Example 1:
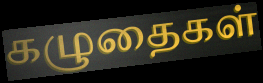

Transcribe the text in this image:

கழுதைகள்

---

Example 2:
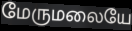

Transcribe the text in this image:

மேருமலையே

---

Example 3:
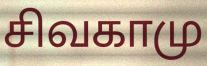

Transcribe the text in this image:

சிவகாமு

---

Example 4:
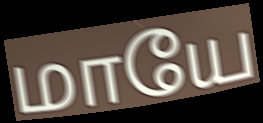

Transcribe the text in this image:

மாயே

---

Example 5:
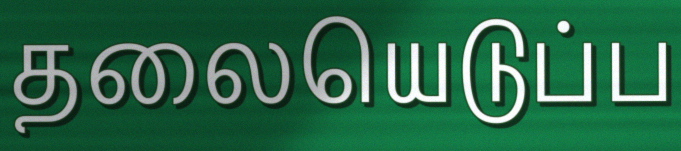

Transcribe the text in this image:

தலையெடுப்ப